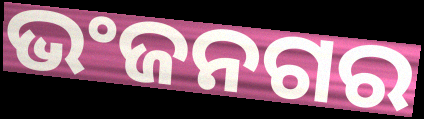
ଭଂଜନଗର